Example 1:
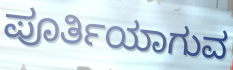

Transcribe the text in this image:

ಪೂರ್ತಿಯಾಗುವ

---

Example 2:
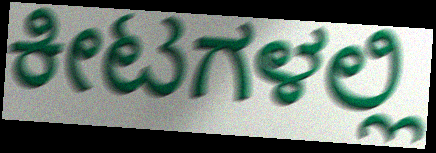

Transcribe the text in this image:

ಕೀಟಗಳಲ್ಲಿ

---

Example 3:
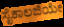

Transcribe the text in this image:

ಸೈಕಾಲಜಿಯೇ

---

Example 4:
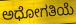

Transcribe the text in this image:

ಅಧೋಗತಿಯೆ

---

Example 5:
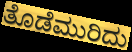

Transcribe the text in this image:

ತೊಡೆಮುರಿದು